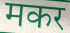
मकर